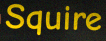
Squire